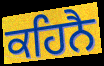
ਕਹਿਨੈ